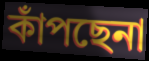
কাঁপছেনা